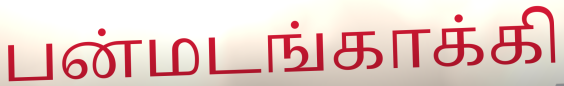
பன்மடங்காக்கி